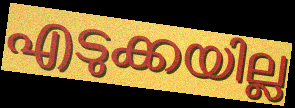
എടുക്കയില്ല